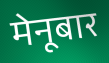
मेनूबार